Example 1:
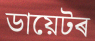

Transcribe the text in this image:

ডায়েটৰ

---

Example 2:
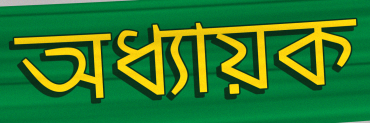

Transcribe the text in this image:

অধ্যায়ক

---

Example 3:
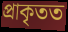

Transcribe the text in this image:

প্ৰাকৃতত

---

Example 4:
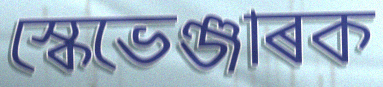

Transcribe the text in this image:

স্কেভেঞ্জাৰক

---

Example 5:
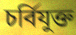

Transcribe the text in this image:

চৰ্বিযুক্ত